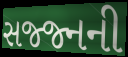
સજ્જ્નની